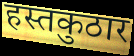
हस्तकुठार